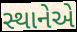
સ્થાનેએ